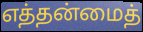
எத்தன்மைத்